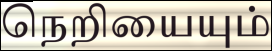
நெறியையும்